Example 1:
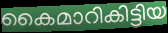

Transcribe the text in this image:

കൈമാറികിട്ടിയ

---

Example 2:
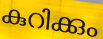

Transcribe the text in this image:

കുറിക്കും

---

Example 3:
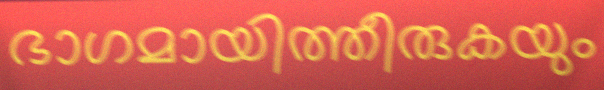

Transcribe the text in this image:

ഭാഗമായിത്തീരുകയും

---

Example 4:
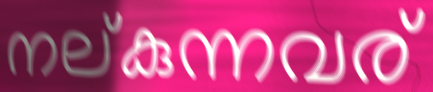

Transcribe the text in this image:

നല്കുന്നവര്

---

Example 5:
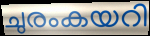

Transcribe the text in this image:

ചുരംകയറി